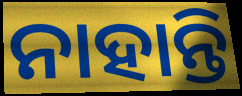
ନାହାନ୍ତି